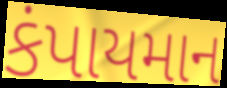
કંપાયમાન